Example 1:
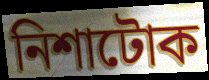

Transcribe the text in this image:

নিশাটোক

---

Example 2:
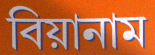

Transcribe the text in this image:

বিয়ানাম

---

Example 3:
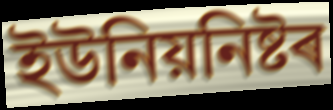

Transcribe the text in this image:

ইউনিয়নিষ্টৰ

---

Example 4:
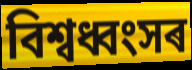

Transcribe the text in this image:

বিশ্বধ্বংসৰ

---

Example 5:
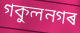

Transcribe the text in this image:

গকুলনগৰ